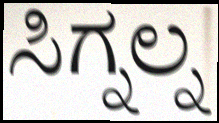
ಸಿಗ್ನಲ್ನ